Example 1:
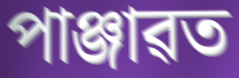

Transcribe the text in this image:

পাঞ্জাৱত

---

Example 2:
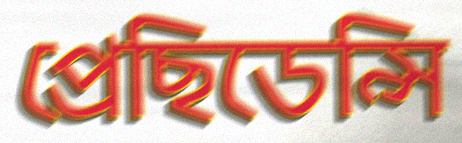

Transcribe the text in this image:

প্ৰেছিডেন্সি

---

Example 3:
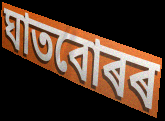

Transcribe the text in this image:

ঘাতবোৰৰ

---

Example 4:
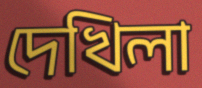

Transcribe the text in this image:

দেখিলা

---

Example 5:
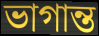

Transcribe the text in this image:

ভাগান্ত